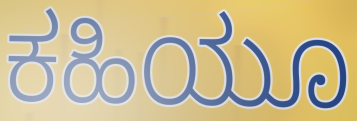
ಕಹಿಯೂ